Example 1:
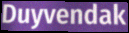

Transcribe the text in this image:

Duyvendak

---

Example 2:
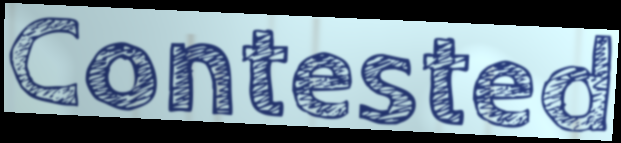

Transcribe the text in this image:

Contested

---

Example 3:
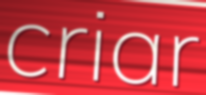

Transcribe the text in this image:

criar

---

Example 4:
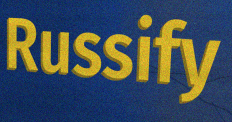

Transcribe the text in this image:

Russify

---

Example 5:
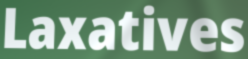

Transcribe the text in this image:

Laxatives